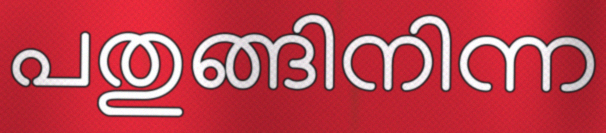
പതുങ്ങിനിന്ന